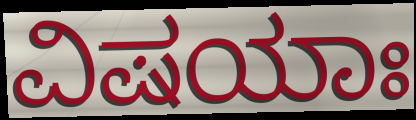
ವಿಷಯಾಃ